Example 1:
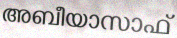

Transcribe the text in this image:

അബീയാസാഫ്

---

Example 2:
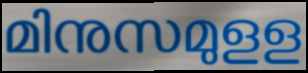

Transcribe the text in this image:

മിനുസമുളള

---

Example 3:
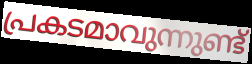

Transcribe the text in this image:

പ്രകടമാവുന്നുണ്ട്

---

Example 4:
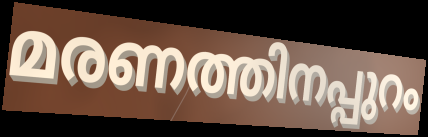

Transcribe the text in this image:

മരണത്തിനപ്പുറം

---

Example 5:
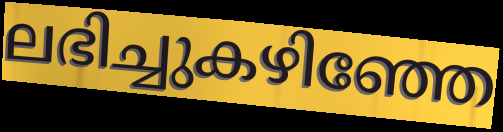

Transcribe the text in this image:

ലഭിച്ചുകഴിഞ്ഞേ